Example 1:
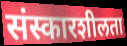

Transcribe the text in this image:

संस्कारशीलता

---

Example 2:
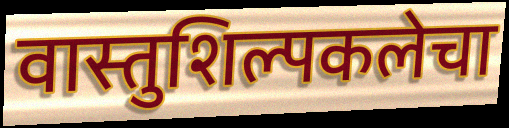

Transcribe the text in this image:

वास्तुशिल्पकलेचा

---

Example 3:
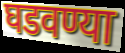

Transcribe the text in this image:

घडवण्या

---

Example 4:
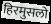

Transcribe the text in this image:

हिरमुसलो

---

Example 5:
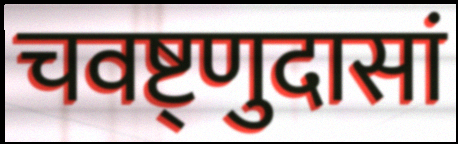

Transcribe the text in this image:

चवष्ट्णुदासां